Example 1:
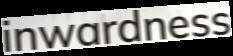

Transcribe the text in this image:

inwardness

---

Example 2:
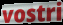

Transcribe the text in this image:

vostri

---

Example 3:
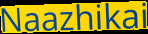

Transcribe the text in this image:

Naazhikai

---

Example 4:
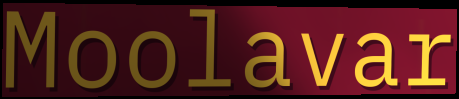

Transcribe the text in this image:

Moolavar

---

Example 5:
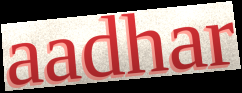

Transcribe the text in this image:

aadhar